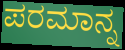
ಪರಮಾನ್ನ